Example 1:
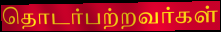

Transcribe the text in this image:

தொடர்பற்றவர்கள்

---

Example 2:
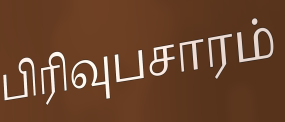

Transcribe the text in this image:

பிரிவுபசாரம்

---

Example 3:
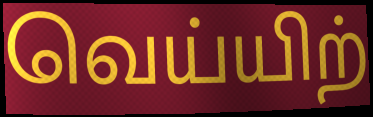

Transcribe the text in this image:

வெய்யிற்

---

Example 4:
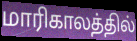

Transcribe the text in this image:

மாரிகாலத்தில்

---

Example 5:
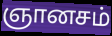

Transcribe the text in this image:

ஞானசம்